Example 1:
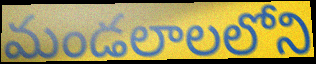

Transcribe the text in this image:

మండలాలలోని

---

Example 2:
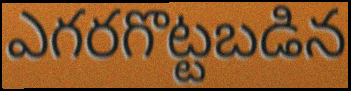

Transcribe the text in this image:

ఎగరగొట్టబడిన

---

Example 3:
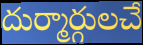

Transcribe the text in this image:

దుర్మార్గులచే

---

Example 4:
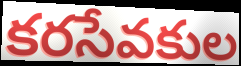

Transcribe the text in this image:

కరసేవకుల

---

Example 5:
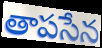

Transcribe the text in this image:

తాపసేన